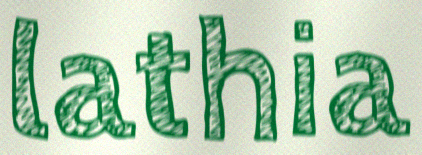
lathia